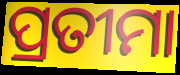
ପ୍ରତୀମା